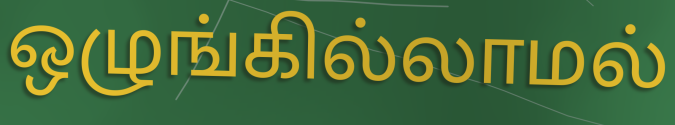
ஒழுங்கில்லாமல்